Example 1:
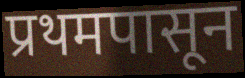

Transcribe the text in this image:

प्रथमपासून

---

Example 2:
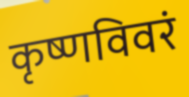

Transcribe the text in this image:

कृष्णविवरं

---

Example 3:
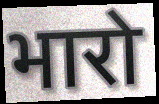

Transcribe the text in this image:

भारो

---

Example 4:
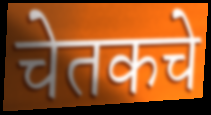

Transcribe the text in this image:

चेतकचे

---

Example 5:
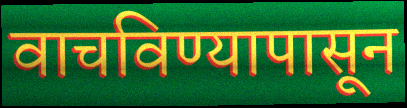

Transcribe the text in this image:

वाचविण्यापासून